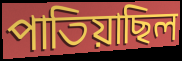
পাতিয়াছিল